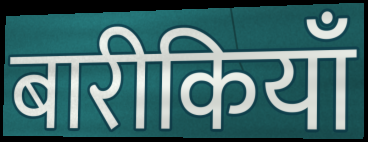
बारीकियाँ